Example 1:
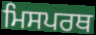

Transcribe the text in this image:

ਮਿਸਪਰਥ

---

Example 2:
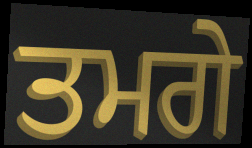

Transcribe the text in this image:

ਤਮਗੇ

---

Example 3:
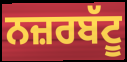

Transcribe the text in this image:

ਨਜ਼ਰਬੱਟੂ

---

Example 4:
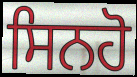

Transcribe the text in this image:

ਸਿਨਹੋ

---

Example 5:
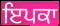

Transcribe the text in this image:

ਇਪਕਾ